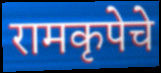
रामकृपेचे